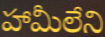
హామీలేని